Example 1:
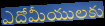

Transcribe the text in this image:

ఎదోమీయులకు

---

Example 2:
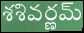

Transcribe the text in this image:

శశివర్ణమ్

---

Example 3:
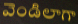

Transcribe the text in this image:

వెండిలాగా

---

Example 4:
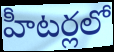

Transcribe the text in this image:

హీటర్లలో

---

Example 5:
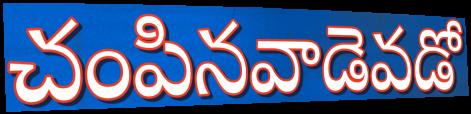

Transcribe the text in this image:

చంపినవాడెవడో